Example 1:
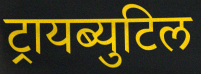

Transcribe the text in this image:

ट्रायब्युटिल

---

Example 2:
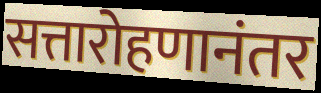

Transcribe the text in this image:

सत्तारोहणानंतर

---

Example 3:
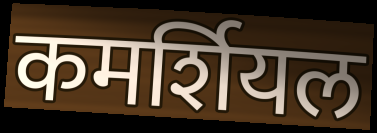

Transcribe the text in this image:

कमर्शियल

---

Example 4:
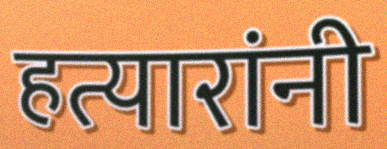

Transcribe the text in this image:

हत्यारांनी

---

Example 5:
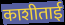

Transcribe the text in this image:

काशीताई